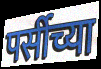
पर्सीच्या